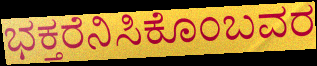
ಭಕ್ತರೆನಿಸಿಕೊಂಬವರ